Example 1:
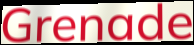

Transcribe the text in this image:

Grenade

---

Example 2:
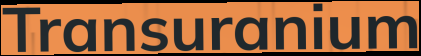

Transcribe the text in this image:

Transuranium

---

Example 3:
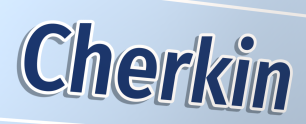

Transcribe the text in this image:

Cherkin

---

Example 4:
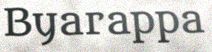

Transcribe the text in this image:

Byarappa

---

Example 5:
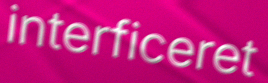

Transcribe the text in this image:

interficeret